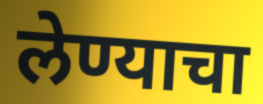
लेण्याचा